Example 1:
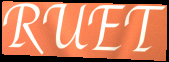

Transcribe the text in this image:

RUET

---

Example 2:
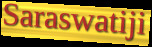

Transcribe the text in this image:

Saraswatiji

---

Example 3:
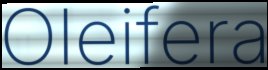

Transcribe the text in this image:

Oleifera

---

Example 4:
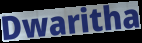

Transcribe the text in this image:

Dwaritha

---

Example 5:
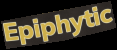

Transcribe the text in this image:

Epiphytic